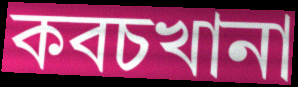
কবচখানা